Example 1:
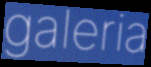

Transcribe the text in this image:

galeria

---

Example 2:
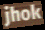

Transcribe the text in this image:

jhok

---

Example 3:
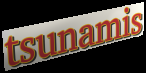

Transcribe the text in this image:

tsunamis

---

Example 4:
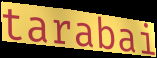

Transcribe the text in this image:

tarabai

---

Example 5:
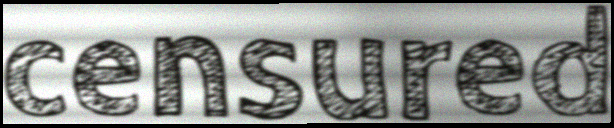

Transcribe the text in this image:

censured